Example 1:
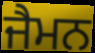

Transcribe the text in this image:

ਜੈਮਨ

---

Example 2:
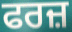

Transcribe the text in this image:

ਫਰਜ਼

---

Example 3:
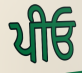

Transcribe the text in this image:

ਪੀਓ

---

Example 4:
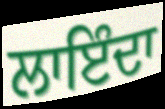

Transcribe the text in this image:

ਲਾਇੰਦਾ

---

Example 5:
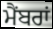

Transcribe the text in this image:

ਮੈਂਬਰਾਂ